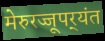
मेरुरज्जूपर्यंत